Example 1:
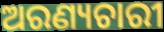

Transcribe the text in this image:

ଅରଣ୍ୟଚାରୀ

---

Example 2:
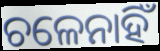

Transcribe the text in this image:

ଚଳେନାହିଁ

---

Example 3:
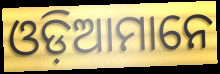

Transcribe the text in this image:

ଓଡ଼ିଆମାନେ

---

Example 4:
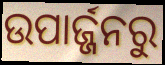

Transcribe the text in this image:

ଉପାର୍ଜ୍ଜନରୁ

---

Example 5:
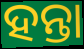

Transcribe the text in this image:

ହନ୍ତା